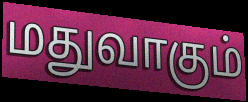
மதுவாகும்